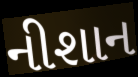
નીશાન